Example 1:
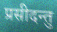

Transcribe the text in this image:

प्रसीदन्तु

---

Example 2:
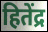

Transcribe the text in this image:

हितेंद्र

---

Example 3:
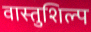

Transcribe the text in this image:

वास्तुशिल्प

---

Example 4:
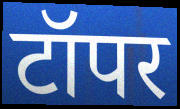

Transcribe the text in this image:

टॉपर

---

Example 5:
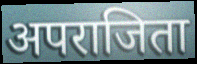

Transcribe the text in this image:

अपराजिता